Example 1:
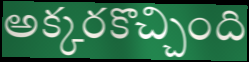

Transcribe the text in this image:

అక్కరకొచ్చింది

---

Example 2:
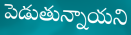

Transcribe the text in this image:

పెడుతున్నాయని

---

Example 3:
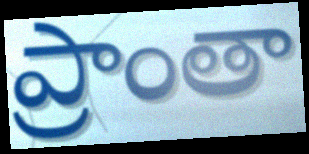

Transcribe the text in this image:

ప్రాంతా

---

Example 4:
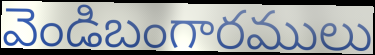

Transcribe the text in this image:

వెండిబంగారములు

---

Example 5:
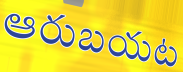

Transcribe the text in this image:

ఆరుబయట